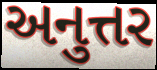
અનુત્તર